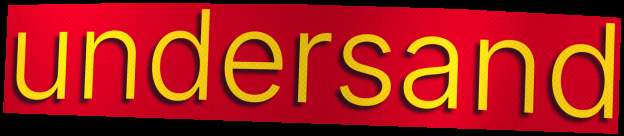
undersand